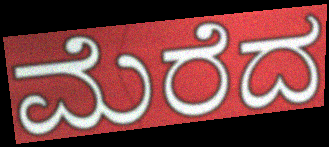
ಮೆರೆದ